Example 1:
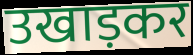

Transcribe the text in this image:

उखाड़कर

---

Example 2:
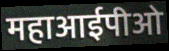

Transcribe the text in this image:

महाआईपीओ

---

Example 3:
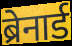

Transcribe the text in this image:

ब्रेनार्ड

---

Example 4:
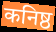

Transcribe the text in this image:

कनिष्ठ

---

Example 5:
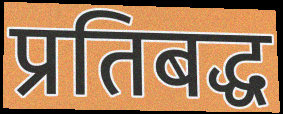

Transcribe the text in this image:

प्रतिबद्ध